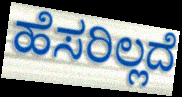
ಹೆಸರಿಲ್ಲದೆ